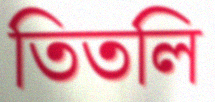
তিতলি